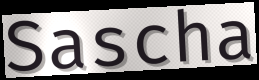
Sascha